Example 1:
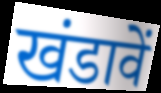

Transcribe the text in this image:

खंडावें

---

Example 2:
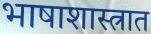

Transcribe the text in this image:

भाषाशास्त्रात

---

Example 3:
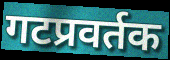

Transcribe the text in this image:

गटप्रवर्तक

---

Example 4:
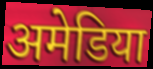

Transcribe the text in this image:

अमेडिया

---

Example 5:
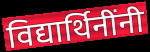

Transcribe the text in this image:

विद्यार्थिनींनी